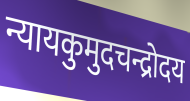
न्यायकुमुदचन्द्रोदय